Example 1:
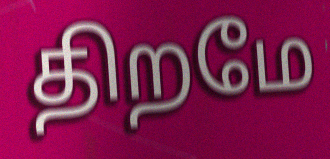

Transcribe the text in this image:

திறமே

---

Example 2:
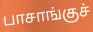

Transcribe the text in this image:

பாசாங்குச்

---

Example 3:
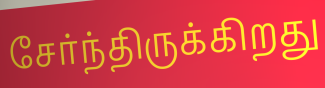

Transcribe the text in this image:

சேர்ந்திருக்கிறது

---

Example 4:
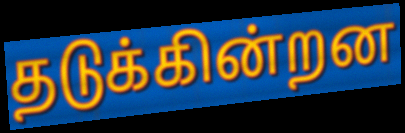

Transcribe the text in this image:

தடுக்கின்றன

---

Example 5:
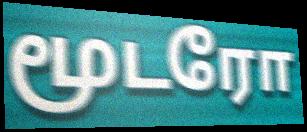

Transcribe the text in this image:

மூடரோ